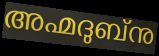
അഹ്മദുബ്നു